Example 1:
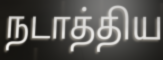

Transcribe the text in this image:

நடாத்திய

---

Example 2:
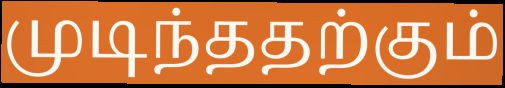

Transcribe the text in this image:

முடிந்ததற்கும்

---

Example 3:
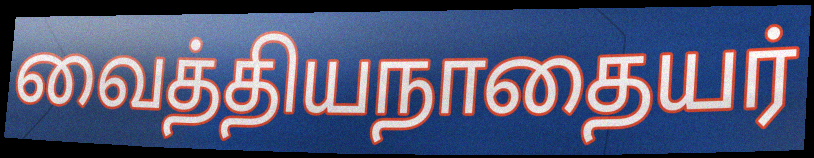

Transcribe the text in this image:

வைத்தியநாதையர்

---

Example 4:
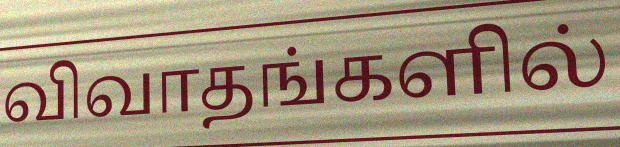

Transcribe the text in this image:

விவாதங்களில்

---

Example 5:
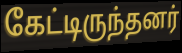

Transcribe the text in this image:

கேட்டிருந்தனர்